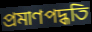
প্রমাণপদ্ধতি